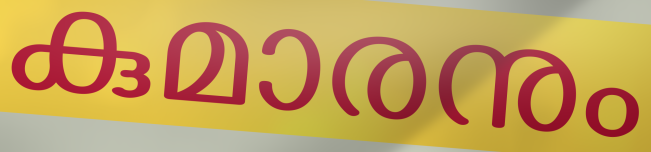
കുമാരനും